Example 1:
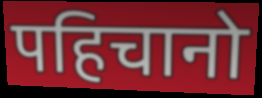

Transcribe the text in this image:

पहिचानो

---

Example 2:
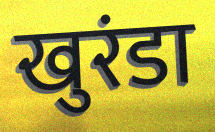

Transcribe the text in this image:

खुरंडा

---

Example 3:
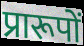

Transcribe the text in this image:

प्रारूपों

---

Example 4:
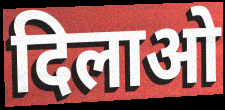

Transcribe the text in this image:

दिलाओ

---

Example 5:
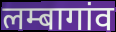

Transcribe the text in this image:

लम्बागांव